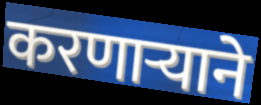
करणाऱ्याने